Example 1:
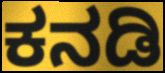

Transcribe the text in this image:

ಕನಡಿ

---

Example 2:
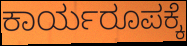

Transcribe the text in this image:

ಕಾರ್ಯರೂಪಕ್ಕೆ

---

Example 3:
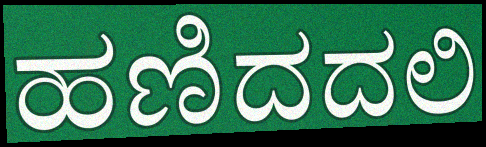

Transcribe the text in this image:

ಹಣಿದದಲಿ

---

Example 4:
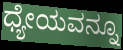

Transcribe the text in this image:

ಧ್ಯೇಯವನ್ನೂ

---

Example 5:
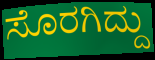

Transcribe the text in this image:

ಸೊರಗಿದ್ದು